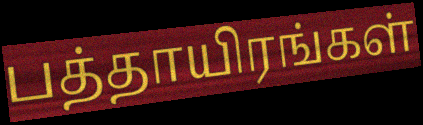
பத்தாயிரங்கள்